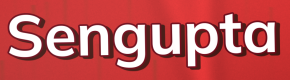
Sengupta